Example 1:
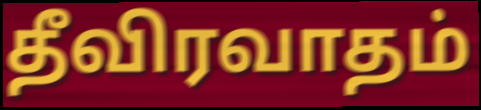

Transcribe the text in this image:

தீவிரவாதம்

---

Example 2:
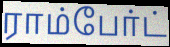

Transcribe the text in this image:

ராம்பேர்ட்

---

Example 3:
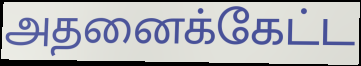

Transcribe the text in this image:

அதனைக்கேட்ட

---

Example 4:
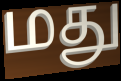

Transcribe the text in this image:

மது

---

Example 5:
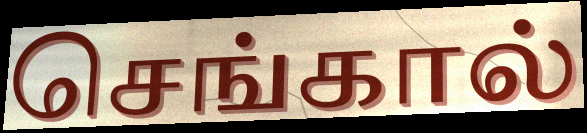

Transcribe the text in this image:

செங்கால்